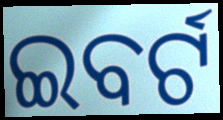
ଇବର୍ଟ